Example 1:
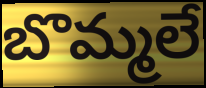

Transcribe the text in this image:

బొమ్మలే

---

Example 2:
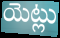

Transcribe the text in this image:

యెట్లు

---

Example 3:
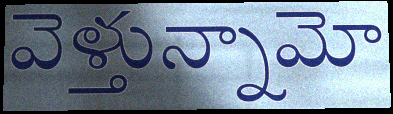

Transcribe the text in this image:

వెళ్తున్నామో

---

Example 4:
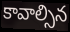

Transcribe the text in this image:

కావాల్సిన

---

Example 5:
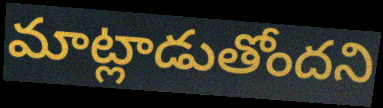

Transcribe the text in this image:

మాట్లాడుతోందని